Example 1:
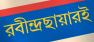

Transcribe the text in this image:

রবীন্দ্রছায়ারই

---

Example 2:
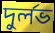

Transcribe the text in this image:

দুর্লভ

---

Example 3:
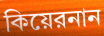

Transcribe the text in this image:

কিয়েরনান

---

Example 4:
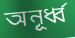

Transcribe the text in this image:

অনূর্ধ্ব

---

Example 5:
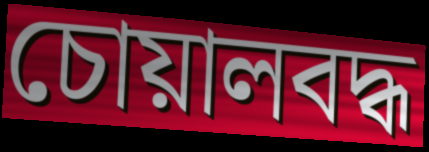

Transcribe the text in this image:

চোয়ালবদ্ধ